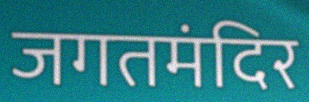
जगतमंदिर